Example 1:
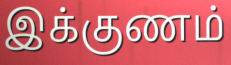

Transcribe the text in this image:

இக்குணம்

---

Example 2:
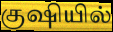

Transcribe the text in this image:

குஷியில்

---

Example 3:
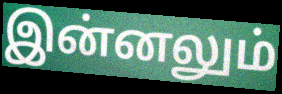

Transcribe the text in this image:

இன்னலும்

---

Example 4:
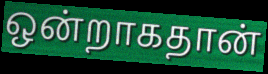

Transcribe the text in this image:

ஒன்றாகதான்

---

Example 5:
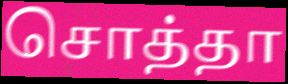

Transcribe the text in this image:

சொத்தா